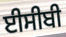
ਈਸੀਬੀ